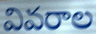
వివరాల